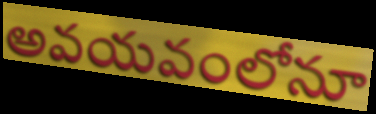
అవయవంలోనూ